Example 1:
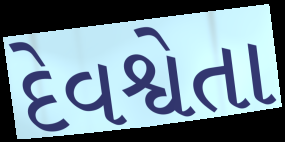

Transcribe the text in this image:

દેવશ્વેતા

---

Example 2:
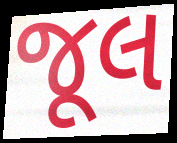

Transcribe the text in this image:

જૂલ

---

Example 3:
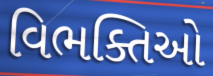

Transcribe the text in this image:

વિભક્તિઓ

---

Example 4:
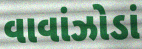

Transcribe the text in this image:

વાવાંઝોડાં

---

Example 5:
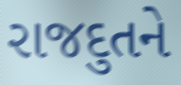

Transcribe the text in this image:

રાજદુતને